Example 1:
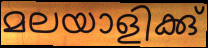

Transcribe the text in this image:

മലയാളിക്കു്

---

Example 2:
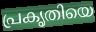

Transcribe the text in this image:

പ്രകൃതിയെ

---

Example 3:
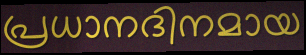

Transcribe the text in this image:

പ്രധാനദിനമായ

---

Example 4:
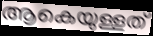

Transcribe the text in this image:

ആകെയുള്ളത്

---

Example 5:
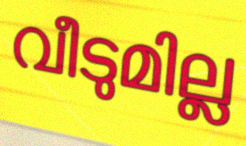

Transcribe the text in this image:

വീടുമില്ല